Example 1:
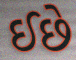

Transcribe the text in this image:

ઈછે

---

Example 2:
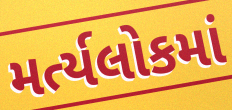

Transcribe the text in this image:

મર્ત્યલોકમાં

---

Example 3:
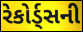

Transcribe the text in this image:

રેકોર્ડ્સની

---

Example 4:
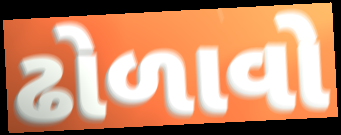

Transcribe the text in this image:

ઢોળાવો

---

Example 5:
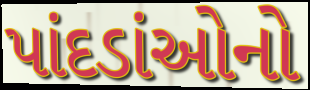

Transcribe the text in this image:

પાંદડાંઓનો